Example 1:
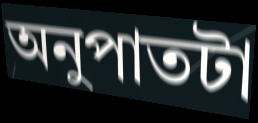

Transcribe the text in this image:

অনুপাতটা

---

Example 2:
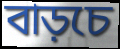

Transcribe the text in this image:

বাড়চে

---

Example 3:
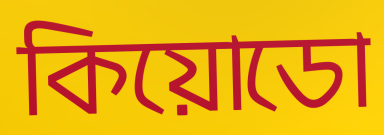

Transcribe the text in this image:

কিয়োডো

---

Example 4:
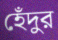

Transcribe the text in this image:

হেঁদুর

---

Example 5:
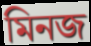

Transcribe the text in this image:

মিনজ